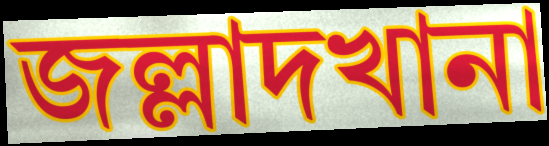
জল্লাদখানা